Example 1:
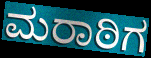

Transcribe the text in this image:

ಮರಾಠಿಗ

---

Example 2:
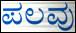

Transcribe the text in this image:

ಪಲವು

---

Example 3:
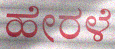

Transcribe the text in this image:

ಹೇರಳೆ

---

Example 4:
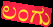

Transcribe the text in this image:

ಲಂಗು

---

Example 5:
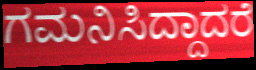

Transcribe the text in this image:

ಗಮನಿಸಿದ್ದಾದರೆ